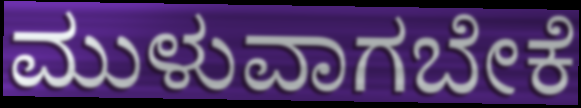
ಮುಳುವಾಗಬೇಕೆ